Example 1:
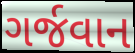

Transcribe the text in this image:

ગર્જવાન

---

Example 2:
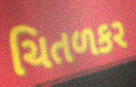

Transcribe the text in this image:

ચિતળકર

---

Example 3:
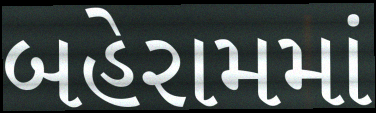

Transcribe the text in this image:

બહેરામમાં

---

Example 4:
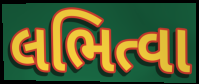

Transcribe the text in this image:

લભિત્વા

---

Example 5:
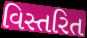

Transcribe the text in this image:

વિસ્તરિત